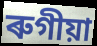
ৰুগীয়া